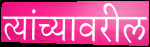
त्यांच्यावरील